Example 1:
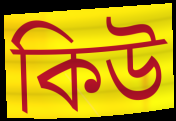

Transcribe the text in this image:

কিউ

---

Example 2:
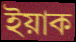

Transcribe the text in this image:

ইয়াক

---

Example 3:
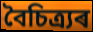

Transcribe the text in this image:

বৈচিত্ৰ্যৰ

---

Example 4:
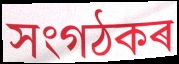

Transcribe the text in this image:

সংগঠকৰ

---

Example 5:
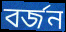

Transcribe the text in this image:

বৰ্জন